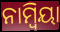
ନାମ୍ୱିୟା